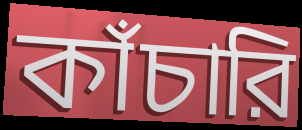
কাঁচারি